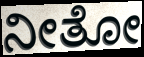
ನೀತೋ